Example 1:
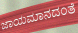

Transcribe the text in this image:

ಜಾಯಮಾನದಂತೆ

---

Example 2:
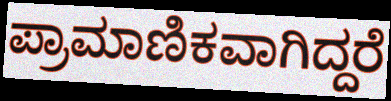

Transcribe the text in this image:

ಪ್ರಾಮಾಣಿಕವಾಗಿದ್ದರೆ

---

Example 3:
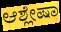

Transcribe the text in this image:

ಆಶ್ಲೇಷಾ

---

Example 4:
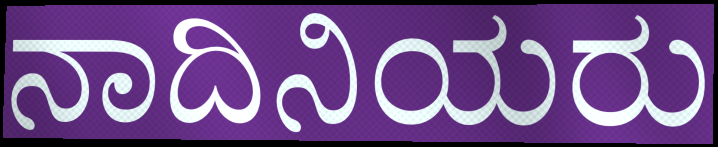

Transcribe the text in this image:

ನಾದಿನಿಯರು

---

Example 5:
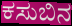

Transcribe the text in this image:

ಕಸುಬಿನ